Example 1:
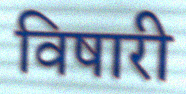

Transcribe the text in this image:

विषारी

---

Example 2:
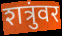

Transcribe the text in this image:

शत्रुंवर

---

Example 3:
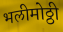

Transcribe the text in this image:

भलीमोठ्ठी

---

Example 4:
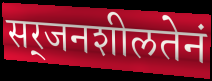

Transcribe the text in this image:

सर्जनशीलतेनं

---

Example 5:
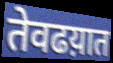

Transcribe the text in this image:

तेवढय़ात